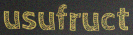
usufruct